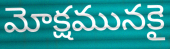
మోక్షమునకై